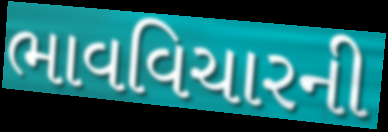
ભાવવિચારની